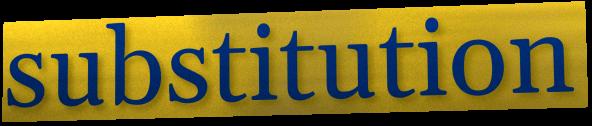
substitution